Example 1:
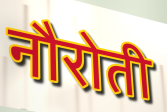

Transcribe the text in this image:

नौरोती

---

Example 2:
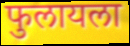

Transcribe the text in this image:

फुलायला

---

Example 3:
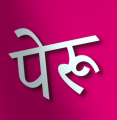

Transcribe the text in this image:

पेरू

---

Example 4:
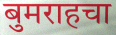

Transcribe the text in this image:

बुमराहचा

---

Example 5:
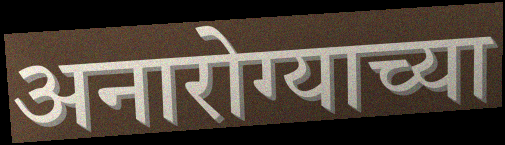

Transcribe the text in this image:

अनारोग्याच्या